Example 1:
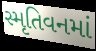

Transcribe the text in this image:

સ્મૃતિવનમાં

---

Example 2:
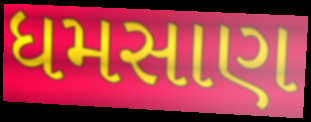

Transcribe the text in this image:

ધમસાણ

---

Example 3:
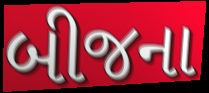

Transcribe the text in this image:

બીજના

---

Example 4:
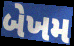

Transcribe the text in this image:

બેખમ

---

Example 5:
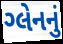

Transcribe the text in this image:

ગ્લેનનું